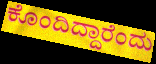
ಕೊಂದಿದ್ದಾರೆಂದು